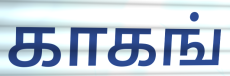
காகங்